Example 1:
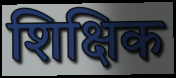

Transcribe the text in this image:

शिक्षिक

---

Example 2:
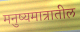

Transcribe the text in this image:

मनुष्यमात्रातील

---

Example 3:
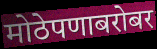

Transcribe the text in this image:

मोठेपणाबरोबर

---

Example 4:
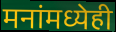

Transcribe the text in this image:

मनांमध्येही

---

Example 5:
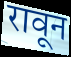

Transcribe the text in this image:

रावून